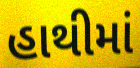
હાથીમાં